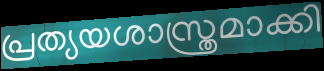
പ്രത്യയശാസ്ത്രമാക്കി